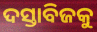
ଦସ୍ତାବିଜକୁ